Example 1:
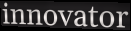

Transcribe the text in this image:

innovator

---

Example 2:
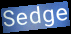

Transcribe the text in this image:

Sedge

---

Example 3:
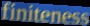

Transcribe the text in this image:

finiteness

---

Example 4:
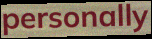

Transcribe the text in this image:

personally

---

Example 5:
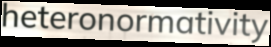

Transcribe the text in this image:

heteronormativity